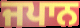
ਜਪਾਨ